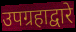
उपग्रहाद्वारे